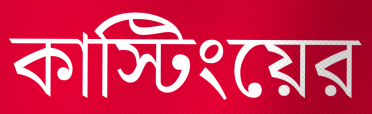
কাস্টিংয়ের